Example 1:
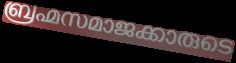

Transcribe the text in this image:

ബ്രഹ്മസമാജക്കാരുടെ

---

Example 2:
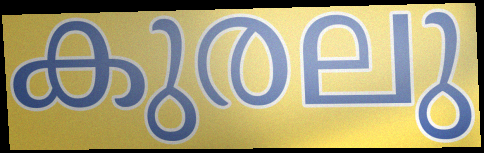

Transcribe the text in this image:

കുരലു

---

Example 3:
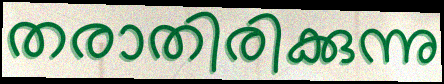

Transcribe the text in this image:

തരാതിരിക്കുന്നു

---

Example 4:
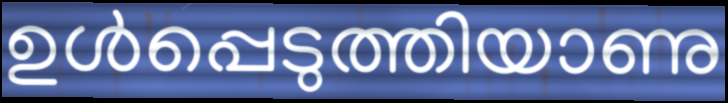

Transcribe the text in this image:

ഉൾപ്പെടുത്തിയാണു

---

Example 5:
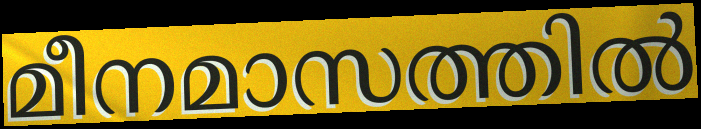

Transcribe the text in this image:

മീനമാസത്തിൽ